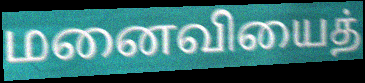
மனைவியைத்